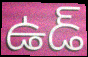
ఉడ్